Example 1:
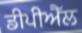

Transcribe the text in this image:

ਡੀਪੀਐੱਲ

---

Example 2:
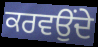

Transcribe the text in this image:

ਕਰਵਉਂਦੇ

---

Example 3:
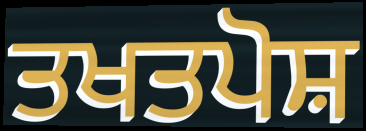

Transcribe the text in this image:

ਤਖਤਪੋਸ਼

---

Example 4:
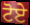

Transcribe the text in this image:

ਟੋਏ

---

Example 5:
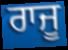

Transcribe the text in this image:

ਰਾਜੂ